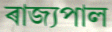
ৰাজ্যপাল